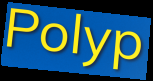
Polyp